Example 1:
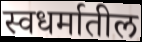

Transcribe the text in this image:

स्वधर्मातील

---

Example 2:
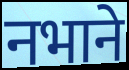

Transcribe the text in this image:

नभाने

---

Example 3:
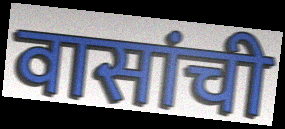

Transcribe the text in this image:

वासांची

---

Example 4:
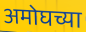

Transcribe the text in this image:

अमोघच्या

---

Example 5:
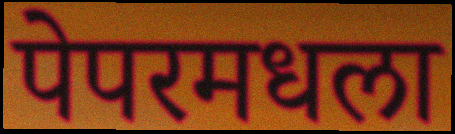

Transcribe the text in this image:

पेपरमधला